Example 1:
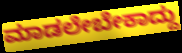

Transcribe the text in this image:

ಮಾಡಲೇಬೇಕಾದ್ದು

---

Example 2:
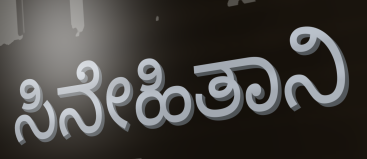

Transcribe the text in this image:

ಸಿನೇಹಿತಾನಿ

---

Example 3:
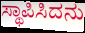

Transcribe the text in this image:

ಸ್ಥಾಪಿಸಿದನು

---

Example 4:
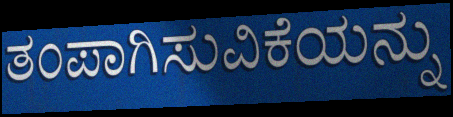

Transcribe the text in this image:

ತಂಪಾಗಿಸುವಿಕೆಯನ್ನು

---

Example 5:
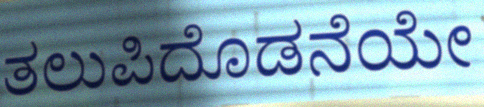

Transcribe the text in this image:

ತಲುಪಿದೊಡನೆಯೇ